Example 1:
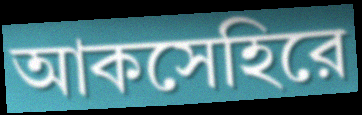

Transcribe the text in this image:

আকসেহিরে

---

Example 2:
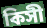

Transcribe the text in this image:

কিসী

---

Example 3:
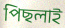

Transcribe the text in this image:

পিছলাই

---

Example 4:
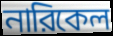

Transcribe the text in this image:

নারিকেল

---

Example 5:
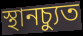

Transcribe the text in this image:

স্থানচ্যুত